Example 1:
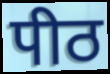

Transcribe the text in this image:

पीठ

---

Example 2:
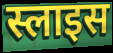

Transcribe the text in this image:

स्लाइस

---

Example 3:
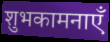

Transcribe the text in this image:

शुभकामनाएँ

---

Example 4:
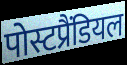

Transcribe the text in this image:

पोस्टप्रैंडियल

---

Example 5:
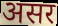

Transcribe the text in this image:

असर